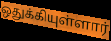
ஒதுக்கியுள்ளார்